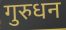
गुरुधन